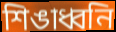
শিঙাধ্বনি